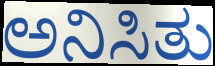
ಅನಿಸಿತು